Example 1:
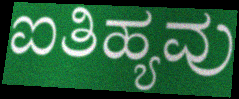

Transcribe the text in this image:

ಐತಿಹ್ಯವು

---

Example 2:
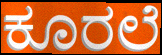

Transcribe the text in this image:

ಕೂರಲೆ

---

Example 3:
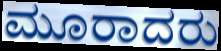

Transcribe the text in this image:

ಮೂರಾದರು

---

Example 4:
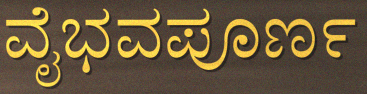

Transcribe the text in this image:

ವೈಭವಪೂರ್ಣ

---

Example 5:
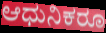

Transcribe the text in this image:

ಆಧುನಿಕರೂ